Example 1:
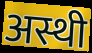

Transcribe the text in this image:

अस्थी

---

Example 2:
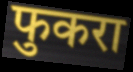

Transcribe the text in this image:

फुकरा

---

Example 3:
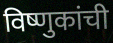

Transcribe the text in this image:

विष्णुकांची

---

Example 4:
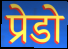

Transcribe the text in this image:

प्रेडो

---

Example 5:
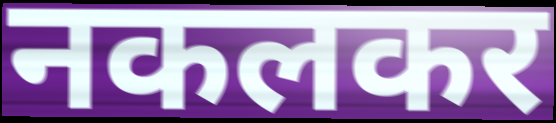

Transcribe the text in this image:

नकलकर